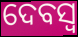
ଦେବସ୍ୱ